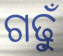
ଗଢ଼ୁଁ